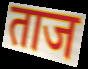
ताज